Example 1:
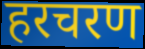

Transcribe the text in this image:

हरचरण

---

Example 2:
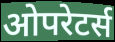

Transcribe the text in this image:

ओपरेटर्स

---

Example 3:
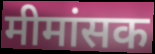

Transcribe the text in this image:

मीमांसक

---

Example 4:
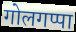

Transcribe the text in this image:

गोलगप्पा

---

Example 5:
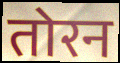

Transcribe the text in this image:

तोरन